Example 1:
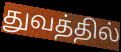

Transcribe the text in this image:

துவத்தில்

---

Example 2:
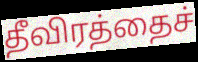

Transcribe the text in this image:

தீவிரத்தைச்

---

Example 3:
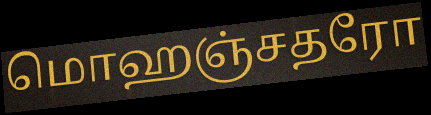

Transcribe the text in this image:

மொஹஞ்சதரோ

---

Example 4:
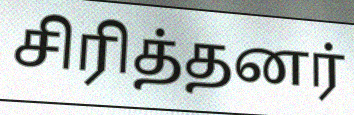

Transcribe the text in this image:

சிரித்தனர்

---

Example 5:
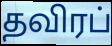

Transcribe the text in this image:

தவிரப்